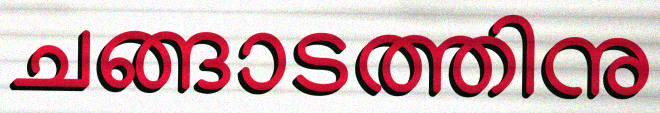
ചങ്ങാടത്തിനു